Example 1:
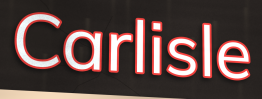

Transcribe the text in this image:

Carlisle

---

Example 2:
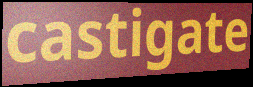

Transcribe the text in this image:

castigate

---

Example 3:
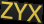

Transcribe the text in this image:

ZYX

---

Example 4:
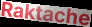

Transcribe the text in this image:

Raktache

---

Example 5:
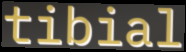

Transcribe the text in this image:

tibial